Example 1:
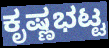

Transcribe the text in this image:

ಕೃಷ್ಣಭಟ್ಟ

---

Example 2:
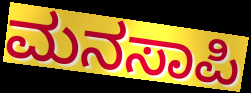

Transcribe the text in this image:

ಮನಸಾಪಿ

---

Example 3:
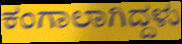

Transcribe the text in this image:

ಕಂಗಾಲಾಗಿದ್ದಳು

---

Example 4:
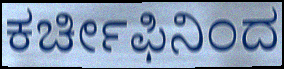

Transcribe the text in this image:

ಕರ್ಚೀಫಿನಿಂದ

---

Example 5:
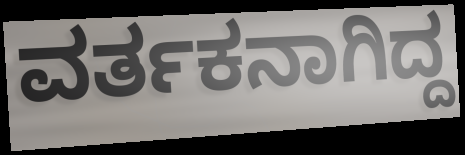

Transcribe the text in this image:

ವರ್ತಕನಾಗಿದ್ದ